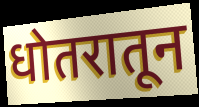
धोतरातून